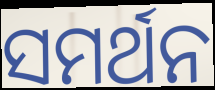
ସମର୍ଥନ